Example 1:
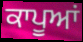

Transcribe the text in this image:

ਕਾਪੂਆਂ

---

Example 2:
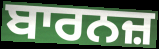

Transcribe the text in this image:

ਬਾਰਨਜ਼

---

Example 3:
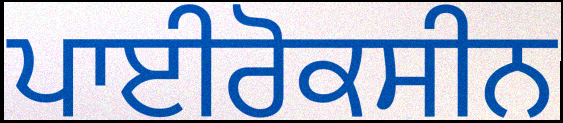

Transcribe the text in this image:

ਪਾਈਰੋਕਸੀਨ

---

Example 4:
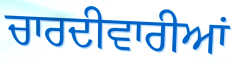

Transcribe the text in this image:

ਚਾਰਦੀਵਾਰੀਆਂ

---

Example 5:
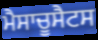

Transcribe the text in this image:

ਮੈਸਾਚੂਸੈਟਸ